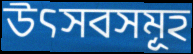
উৎসবসমূহ